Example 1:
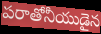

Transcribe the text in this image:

పరాతోనీయుడైన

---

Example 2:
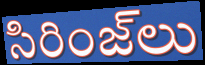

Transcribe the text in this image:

సిరింజ్‌లు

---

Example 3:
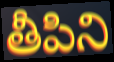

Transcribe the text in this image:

తీపిని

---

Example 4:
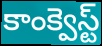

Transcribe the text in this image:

కాంక్వెస్ట్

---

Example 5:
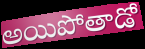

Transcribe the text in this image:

అయిపోతాడో